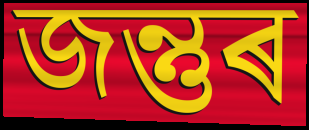
জন্তুৰ